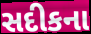
સદીકના